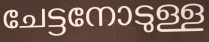
ചേട്ടനോടുള്ള